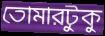
তোমারটুকু